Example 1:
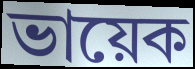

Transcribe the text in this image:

ভায়েক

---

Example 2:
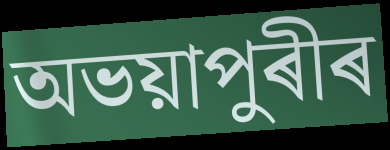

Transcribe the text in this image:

অভয়াপুৰীৰ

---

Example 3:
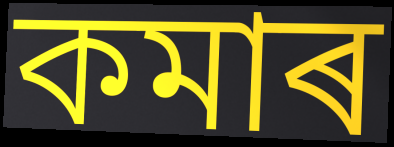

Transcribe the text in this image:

কমাৰ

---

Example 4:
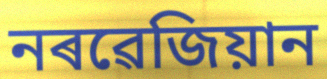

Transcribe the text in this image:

নৰৱেজিয়ান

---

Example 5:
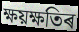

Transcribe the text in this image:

ক্ষয়ক্ষতিৰ